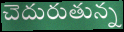
చెదురుతున్న